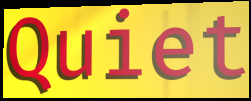
Quiet